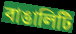
বাঙালিটি